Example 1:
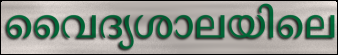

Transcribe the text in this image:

വൈദ്യശാലയിലെ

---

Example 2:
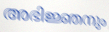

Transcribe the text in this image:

അഭിജ്ഞനും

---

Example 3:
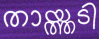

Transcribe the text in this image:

തായ്ത്തടി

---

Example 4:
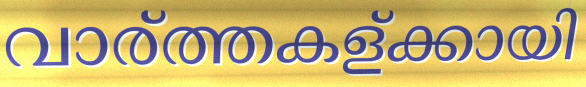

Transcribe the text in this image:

വാര്ത്തകള്ക്കായി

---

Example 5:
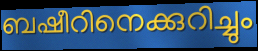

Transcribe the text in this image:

ബഷീറിനെക്കുറിച്ചും